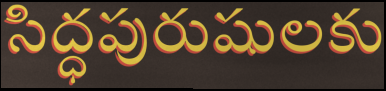
సిద్ధపురుషులకు